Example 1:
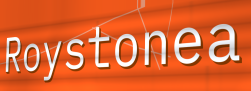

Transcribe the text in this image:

Roystonea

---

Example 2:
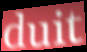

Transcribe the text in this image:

duit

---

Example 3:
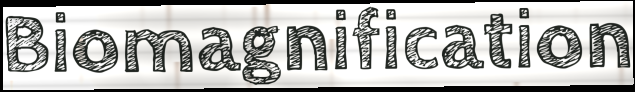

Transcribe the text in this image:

Biomagnification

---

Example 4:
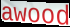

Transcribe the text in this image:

awood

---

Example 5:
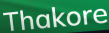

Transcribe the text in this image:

Thakore